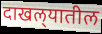
दाखल्यातील